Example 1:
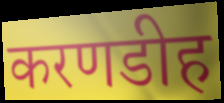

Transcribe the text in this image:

करणडीह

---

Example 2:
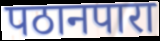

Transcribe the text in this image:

पठानपारा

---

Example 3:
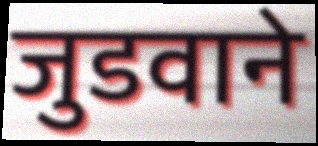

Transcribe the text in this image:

जुडवाने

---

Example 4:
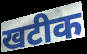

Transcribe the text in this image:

खटीक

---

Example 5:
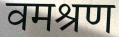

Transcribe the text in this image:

वमश्रण